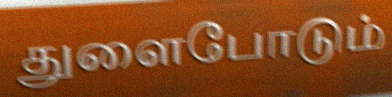
துளைபோடும்